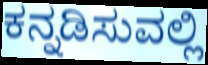
ಕನ್ನಡಿಸುವಲ್ಲಿ